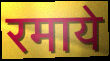
रमाये